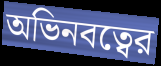
অভিনবত্বের